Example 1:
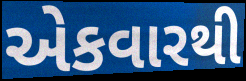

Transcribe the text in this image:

એકવારથી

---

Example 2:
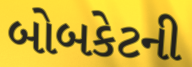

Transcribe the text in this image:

બોબકેટની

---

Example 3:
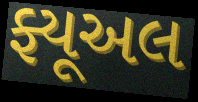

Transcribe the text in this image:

ફ્યૂઅલ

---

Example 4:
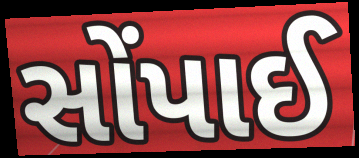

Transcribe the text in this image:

સોંપાઈ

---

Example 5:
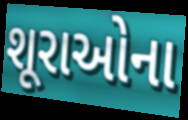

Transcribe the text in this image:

શૂરાઓના